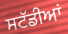
ਸਟੱਡੀਆਂ